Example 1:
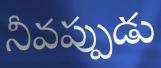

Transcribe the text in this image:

నీవప్పుడు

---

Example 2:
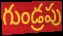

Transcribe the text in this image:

గుండ్రపు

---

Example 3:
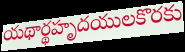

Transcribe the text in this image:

యథార్థహృదయులకొరకు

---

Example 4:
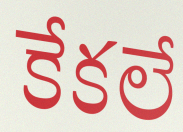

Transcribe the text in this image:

కేకలే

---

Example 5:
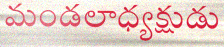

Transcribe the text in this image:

మండలాధ్యక్షుడు